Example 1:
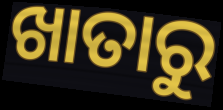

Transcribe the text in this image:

ଖାତାରୁ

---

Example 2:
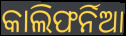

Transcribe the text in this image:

କାଲିଫର୍ନିଆ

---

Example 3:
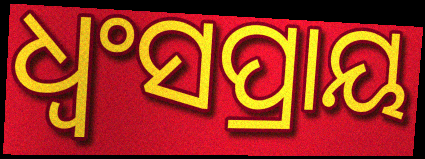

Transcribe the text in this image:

ଧ୍ୱଂସପ୍ରାୟ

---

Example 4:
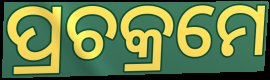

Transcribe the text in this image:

ପ୍ରଚକ୍ରମେ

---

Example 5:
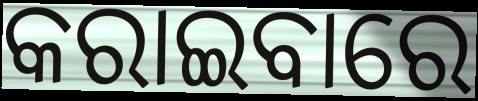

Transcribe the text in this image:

କରାଇବାରେ